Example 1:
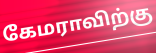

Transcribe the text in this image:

கேமராவிற்கு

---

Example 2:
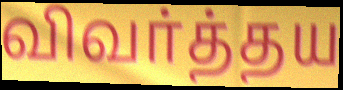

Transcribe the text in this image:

விவர்த்தய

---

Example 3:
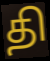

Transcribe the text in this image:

தி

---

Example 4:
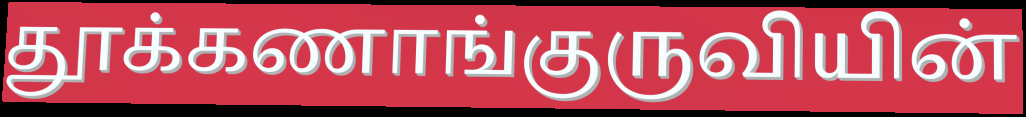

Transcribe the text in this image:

தூக்கணாங்குருவியின்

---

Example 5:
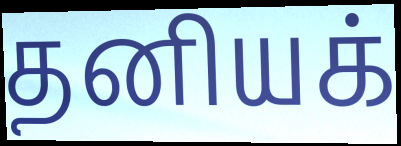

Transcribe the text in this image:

தனியக்